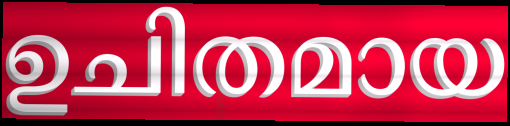
ഉചിതമായ